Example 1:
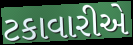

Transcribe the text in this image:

ટકાવારીએ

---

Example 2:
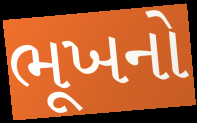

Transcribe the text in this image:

ભૂખનો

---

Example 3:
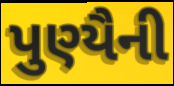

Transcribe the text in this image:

પુણ્યૈની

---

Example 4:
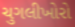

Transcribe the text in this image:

ચુગલીખોરો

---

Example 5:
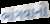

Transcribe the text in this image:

ભાંગવાનો